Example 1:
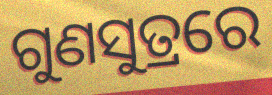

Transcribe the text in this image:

ଗୁଣସୁତ୍ରରେ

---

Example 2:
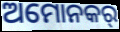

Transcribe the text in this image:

ଅମୋନକର୍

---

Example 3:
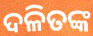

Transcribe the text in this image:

ଦଳିତଙ୍କ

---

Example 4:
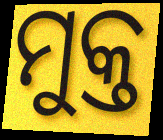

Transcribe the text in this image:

ମୁକ୍ତ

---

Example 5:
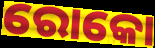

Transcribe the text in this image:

ରୋକୋ